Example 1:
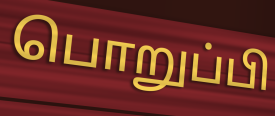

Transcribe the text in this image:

பொறுப்பி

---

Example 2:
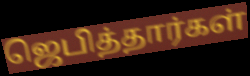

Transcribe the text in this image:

ஜெபித்தார்கள்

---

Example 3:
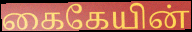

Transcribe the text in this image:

கைகேயின்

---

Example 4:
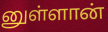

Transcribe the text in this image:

னுள்ளான்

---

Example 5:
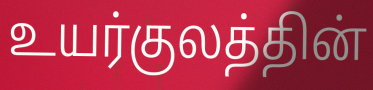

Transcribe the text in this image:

உயர்குலத்தின்